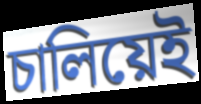
চালিয়েই